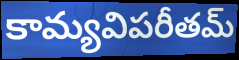
కామ్యవిపరీతమ్